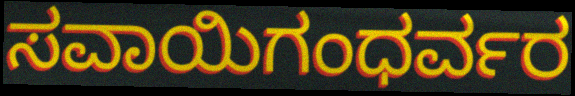
ಸವಾಯಿಗಂಧರ್ವರ